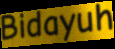
Bidayuh